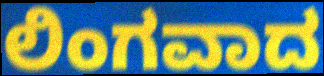
ಲಿಂಗವಾದ